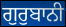
ਗੁਰੁਬਾਨੀ